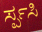
ರ್ಸ್ಪಸಿ